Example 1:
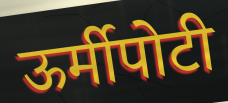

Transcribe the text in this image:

ऊर्मीपोटी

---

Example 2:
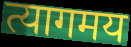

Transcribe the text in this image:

त्यागमय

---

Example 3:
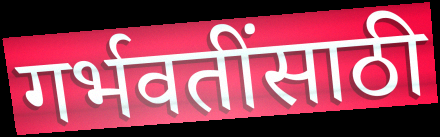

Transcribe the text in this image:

गर्भवतींसाठी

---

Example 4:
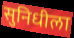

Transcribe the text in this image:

सुनिधीला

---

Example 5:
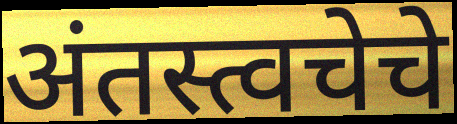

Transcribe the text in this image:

अंतस्त्वचेचे